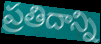
ప్రతిదాన్ని